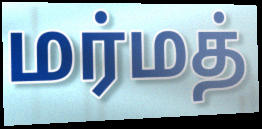
மர்மத்